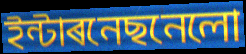
ইন্টাৰনেছনেলো